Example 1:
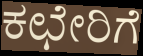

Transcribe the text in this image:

ಕಛೇರಿಗೆ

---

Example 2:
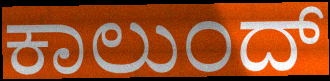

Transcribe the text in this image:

ಕಾಲುಂದ್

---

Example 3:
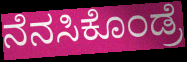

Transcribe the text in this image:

ನೆನಸಿಕೊಂಡ್ರೆ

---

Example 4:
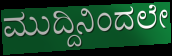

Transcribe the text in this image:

ಮುದ್ದಿನಿಂದಲೇ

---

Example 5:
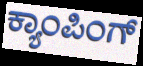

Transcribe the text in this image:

ಕ್ಯಾಂಪಿಂಗ್